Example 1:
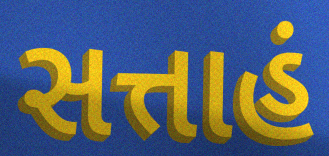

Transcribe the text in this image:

સત્તાહં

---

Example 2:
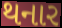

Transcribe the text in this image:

થનાર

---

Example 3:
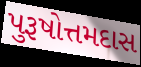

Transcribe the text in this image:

પુરૂષોત્તમદાસ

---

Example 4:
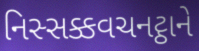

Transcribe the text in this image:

નિસ્સક્કવચનટ્ઠાને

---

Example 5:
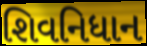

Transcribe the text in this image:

શિવનિધાન